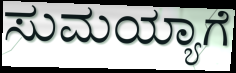
ಸುಮಯ್ಯಾಗೆ